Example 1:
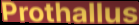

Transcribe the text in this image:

Prothallus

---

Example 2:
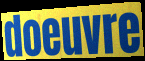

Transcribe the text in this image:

doeuvre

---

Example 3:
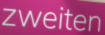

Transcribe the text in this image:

zweiten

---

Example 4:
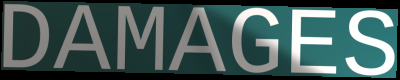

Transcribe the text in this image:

DAMAGES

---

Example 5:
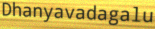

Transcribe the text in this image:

Dhanyavadagalu